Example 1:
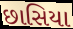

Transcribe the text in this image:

છાસિયા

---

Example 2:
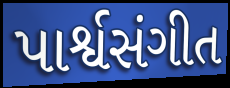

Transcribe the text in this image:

પાર્શ્વસંગીત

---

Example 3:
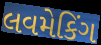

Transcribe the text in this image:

લવમેકિંગ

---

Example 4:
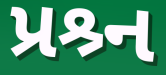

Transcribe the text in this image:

પ્રશ્ર્ન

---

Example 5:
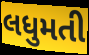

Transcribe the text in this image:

લધુમતી